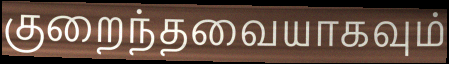
குறைந்தவையாகவும்